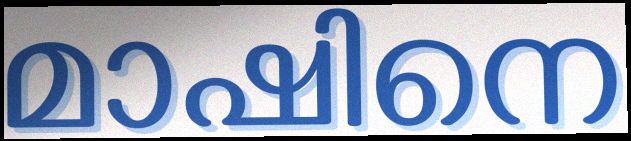
മാഷിനെ